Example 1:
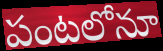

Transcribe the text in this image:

పంటలోనూ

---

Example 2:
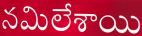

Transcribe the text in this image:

నమిలేశాయి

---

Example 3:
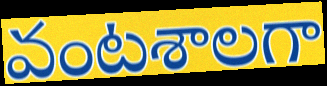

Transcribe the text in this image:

వంటశాలగా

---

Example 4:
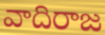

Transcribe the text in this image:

వాదిరాజ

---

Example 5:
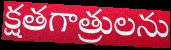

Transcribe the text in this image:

క్షతగాత్రులను